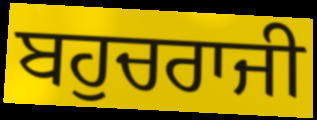
ਬਹੁਚਰਾਜੀ